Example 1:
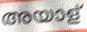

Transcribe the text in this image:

അയാള്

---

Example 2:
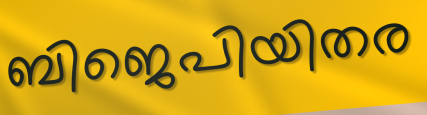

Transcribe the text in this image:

ബിജെപിയിതര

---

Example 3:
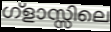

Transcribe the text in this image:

ഗ്ളാസ്സിലെ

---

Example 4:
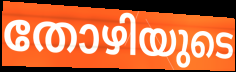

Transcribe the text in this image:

തോഴിയുടെ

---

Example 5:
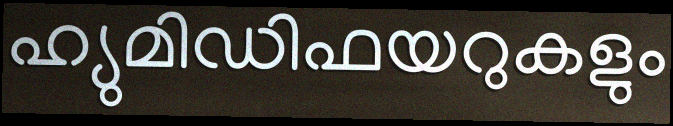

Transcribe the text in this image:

ഹ്യുമിഡിഫയറുകളും